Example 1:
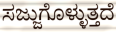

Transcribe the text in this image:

ಸಜ್ಜುಗೊಳ್ಳುತ್ತದೆ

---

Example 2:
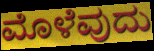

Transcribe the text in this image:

ಮೊಳೆವುದು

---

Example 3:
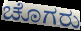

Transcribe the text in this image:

ಚೊಗರು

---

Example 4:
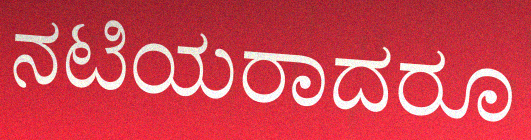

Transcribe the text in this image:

ನಟಿಯರಾದರೂ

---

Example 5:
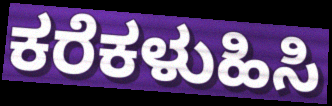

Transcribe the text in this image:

ಕರೆಕಳುಹಿಸಿ